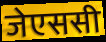
जेएससी